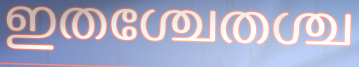
ഇതശ്ചേതശ്ച